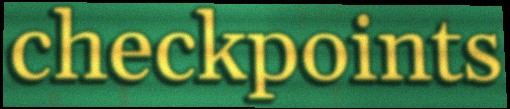
checkpoints